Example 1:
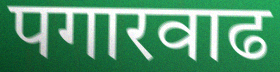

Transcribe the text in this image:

पगारवाढ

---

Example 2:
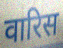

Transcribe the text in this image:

वारिस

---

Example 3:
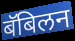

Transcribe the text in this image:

बॅबिलन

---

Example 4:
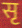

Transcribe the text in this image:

सृ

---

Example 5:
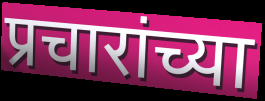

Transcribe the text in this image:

प्रचारांच्या